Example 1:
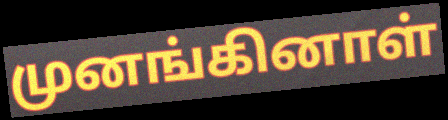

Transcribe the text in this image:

முனங்கினாள்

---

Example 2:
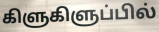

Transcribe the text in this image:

கிளுகிளுப்பில்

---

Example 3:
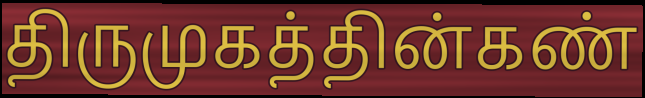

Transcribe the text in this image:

திருமுகத்தின்கண்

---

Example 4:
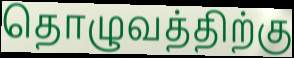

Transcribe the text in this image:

தொழுவத்திற்கு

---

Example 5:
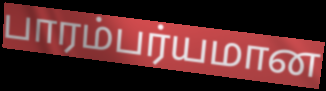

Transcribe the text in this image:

பாரம்பர்யமான